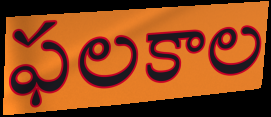
ఫలకాల